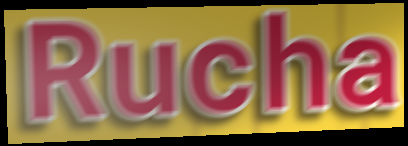
Rucha